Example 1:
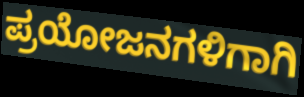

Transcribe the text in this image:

ಪ್ರಯೋಜನಗಳಿಗಾಗಿ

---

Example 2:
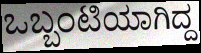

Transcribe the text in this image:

ಒಬ್ಬಂಟಿಯಾಗಿದ್ದ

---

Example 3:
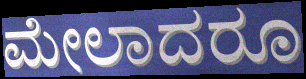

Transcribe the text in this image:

ಮೇಲಾದರೂ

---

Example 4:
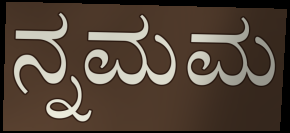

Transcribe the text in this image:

ನ್ನಮಮ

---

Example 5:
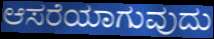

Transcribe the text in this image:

ಆಸರೆಯಾಗುವುದು